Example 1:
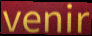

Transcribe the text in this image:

venir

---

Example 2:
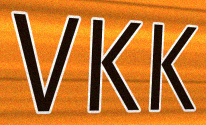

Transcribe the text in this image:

VKK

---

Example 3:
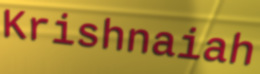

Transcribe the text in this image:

Krishnaiah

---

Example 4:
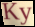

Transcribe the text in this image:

Ky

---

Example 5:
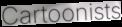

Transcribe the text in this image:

Cartoonists